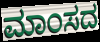
ಮಾಂಸದ